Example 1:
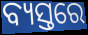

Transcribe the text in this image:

ବ୍ୟସ୍ତରେ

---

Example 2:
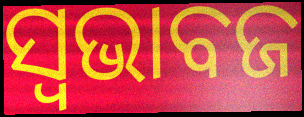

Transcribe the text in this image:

ସ୍ୱଭାବଜ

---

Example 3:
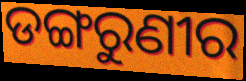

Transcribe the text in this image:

ଡଙ୍ଗରୁଣୀର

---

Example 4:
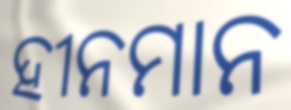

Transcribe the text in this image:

ହୀନମାନ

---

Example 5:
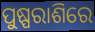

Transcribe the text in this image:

ପୁଷ୍ପରାଶିରେ